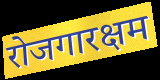
रोजगारक्षम